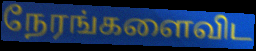
நேரங்களைவிட